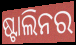
ଷ୍ଟାଲିନର